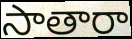
సాతారా